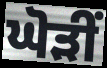
ਘੋੜੀਂ